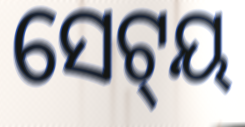
ସେଟ୍‌ୟ